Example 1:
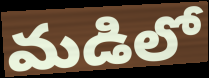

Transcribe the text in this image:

మడిలో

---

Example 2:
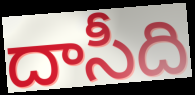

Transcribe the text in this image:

దాసీది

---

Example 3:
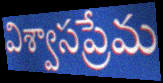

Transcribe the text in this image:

విశ్వాసప్రేమ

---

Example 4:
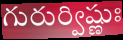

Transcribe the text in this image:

గురుర్విష్ణుః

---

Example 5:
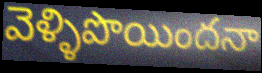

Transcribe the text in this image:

వెళ్ళిపొయిందనా